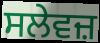
ਸਲੇਵਜ਼